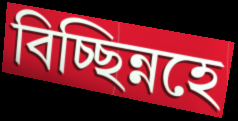
বিচ্ছিন্নহে